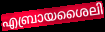
എബ്രായശൈലി